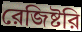
রেজিষ্টরি